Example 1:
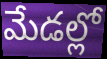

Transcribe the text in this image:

మేడల్లో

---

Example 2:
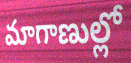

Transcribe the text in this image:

మాగాణుల్లో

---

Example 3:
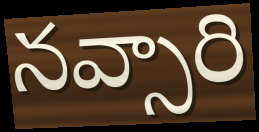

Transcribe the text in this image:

నవ్సారి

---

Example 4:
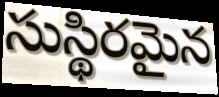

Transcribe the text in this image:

సుస్థిరమైన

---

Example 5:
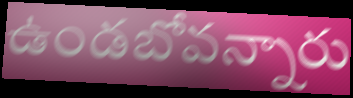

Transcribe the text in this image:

ఉండబోవన్నారు